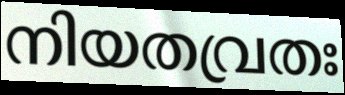
നിയതവ്രതഃ